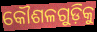
କୌଶଳଗୁଡ଼ିକୁ